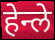
हेन्ले